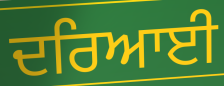
ਦਰਿਆਈ